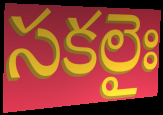
సకలైః